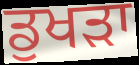
ਡੁਖੜਾ